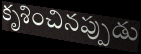
కృశించినప్పుడు